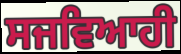
ਸਜਵਿਆਹੀ